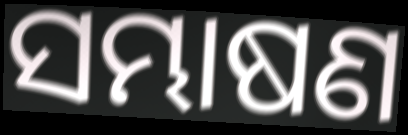
ସମ୍ଭାଷଣ